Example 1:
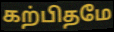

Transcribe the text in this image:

கற்பிதமே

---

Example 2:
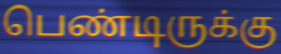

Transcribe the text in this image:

பெண்டிருக்கு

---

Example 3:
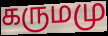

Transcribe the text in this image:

கருமமு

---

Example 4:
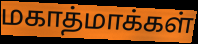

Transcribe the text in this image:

மகாத்மாக்கள்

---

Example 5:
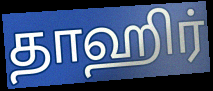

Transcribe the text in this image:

தாஹிர்